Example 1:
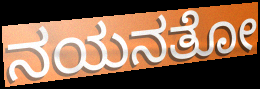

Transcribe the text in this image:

ನಯನತೋ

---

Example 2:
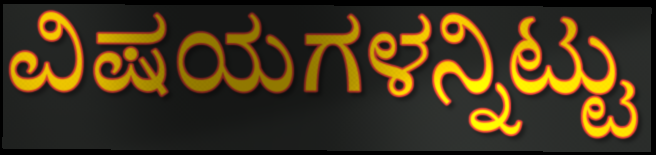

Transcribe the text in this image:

ವಿಷಯಗಳನ್ನಿಟ್ಟು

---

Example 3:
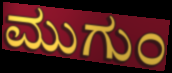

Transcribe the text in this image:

ಮುಗುಂ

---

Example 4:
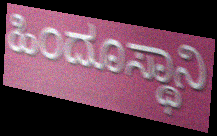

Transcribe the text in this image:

ಹಿಂದೂಸ್ಥಾನಿ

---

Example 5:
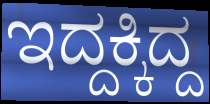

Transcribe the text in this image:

ಇದ್ದಕ್ಕಿದ್ದ